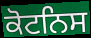
ਕੋਟਨਿਸ